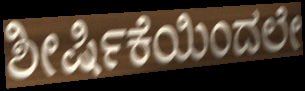
ಶೀರ್ಷಿಕೆಯಿಂದಲೇ